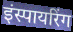
इंस्पायरिंग